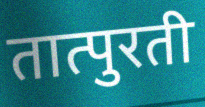
तात्पुरती